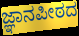
ಜ್ಞಾನಪೀಠದ